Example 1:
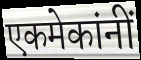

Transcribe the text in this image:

एकमेकांनीं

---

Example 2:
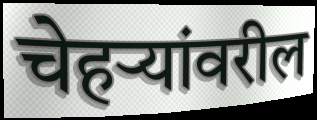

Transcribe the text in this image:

चेहऱ्यांवरील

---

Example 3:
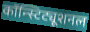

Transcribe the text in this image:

कॉन्स्टिट्यूशनल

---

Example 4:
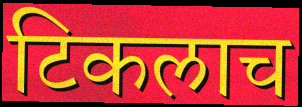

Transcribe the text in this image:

टिकलाच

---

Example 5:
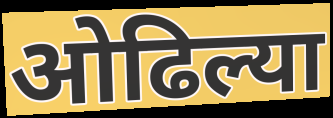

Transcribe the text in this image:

ओढिल्या